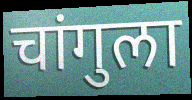
चांगुला